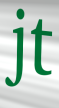
jt